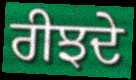
ਰੀਝਦੇ